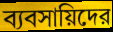
ব্যবসায়িদের